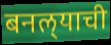
बनल्याची